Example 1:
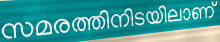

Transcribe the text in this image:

സമരത്തിനിടയിലാണ്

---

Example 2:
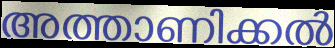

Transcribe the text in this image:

അത്താണിക്കൽ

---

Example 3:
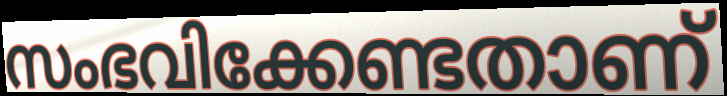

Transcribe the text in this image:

സംഭവിക്കേണ്ടതാണ്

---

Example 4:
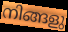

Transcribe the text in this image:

നിങ്ങളു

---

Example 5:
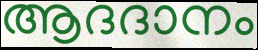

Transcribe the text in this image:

ആദദാനം